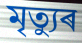
মৃত্যুৰ